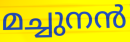
മച്ചുനൻ